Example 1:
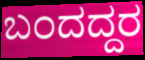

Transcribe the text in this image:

ಬಂದದ್ದರ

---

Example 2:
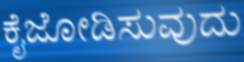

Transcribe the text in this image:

ಕೈಜೋಡಿಸುವುದು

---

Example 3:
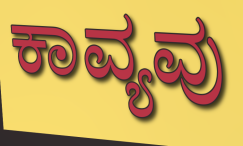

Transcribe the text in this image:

ಕಾವ್ಯವು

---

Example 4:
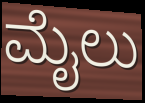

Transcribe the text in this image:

ಮೈಲು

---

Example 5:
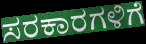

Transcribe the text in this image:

ಸರಕಾರಗಳಿಗೆ